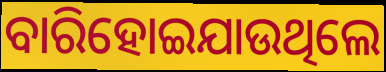
ବାରିହୋଇଯାଉଥିଲେ